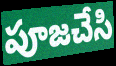
పూజచేసి